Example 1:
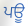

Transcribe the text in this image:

ਪਊ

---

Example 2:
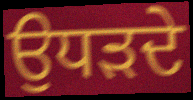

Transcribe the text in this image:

ਉਧੜਦੇ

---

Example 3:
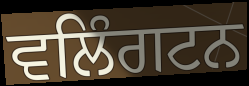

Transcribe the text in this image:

ਵਲਿੰਗਟਨ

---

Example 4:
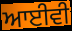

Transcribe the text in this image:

ਆਈਵੀ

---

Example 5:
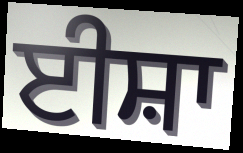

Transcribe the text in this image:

ਈਸ਼ਾ